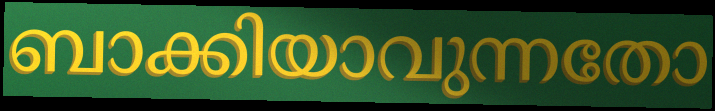
ബാക്കിയാവുന്നതോ